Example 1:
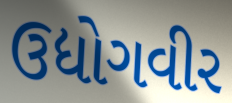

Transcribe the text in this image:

ઉદ્યોગવીર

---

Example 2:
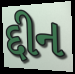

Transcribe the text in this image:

દ્દીન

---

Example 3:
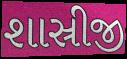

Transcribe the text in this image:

શાસ્રીજી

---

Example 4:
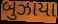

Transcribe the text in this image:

બુઝાયા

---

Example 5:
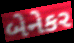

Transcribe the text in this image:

બેનેકર